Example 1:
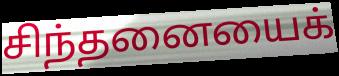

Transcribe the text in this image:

சிந்தனையைக்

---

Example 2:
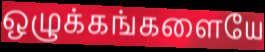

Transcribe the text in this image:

ஒழுக்கங்களையே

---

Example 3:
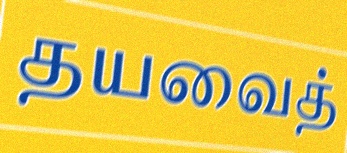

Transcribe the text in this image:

தயவைத்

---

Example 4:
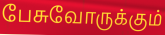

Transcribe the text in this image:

பேசுவோருக்கும்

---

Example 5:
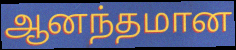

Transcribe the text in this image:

ஆனந்தமான